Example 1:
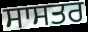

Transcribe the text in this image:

ਸਾਸਤਰ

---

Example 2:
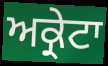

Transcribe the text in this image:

ਅਕ੍ਰੇਟਾ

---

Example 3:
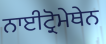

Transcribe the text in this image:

ਨਾਈਟ੍ਰੋਮੇਥੇਨ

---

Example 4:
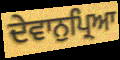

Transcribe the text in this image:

ਦੇਵਾਨੁਪ੍ਰਿਆ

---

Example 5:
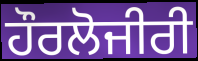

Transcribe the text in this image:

ਹੌਰਲੋਜੀਰੀ